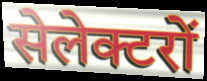
सेलेक्टरों